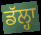
ਡੱਲ੍ਹਾ